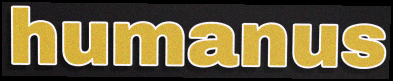
humanus